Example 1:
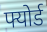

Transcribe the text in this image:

फ्योर्ड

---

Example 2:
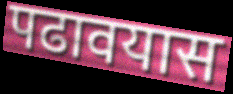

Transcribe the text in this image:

पढावयास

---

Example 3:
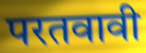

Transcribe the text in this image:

परतवावी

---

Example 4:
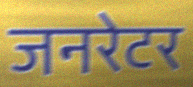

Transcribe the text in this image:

जनरेटर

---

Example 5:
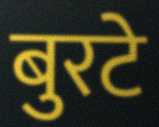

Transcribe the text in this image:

बुरटे